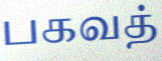
பகவத்